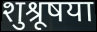
शुश्रूषया